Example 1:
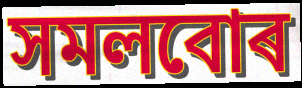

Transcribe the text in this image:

সমলবোৰ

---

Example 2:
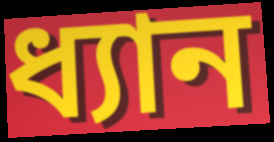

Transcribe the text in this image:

ধ্যান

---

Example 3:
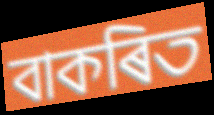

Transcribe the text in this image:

বাকৰিত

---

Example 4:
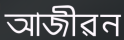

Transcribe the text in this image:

আজীৱন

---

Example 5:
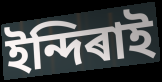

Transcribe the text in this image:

ইন্দিৰাই